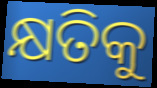
କ୍ଷତିକୁ